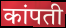
कांपती